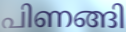
പിണങ്ങി